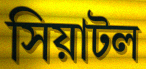
সিয়াটল